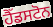
ਹੈੱਡਸਟੋਨ